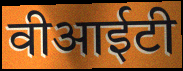
वीआईटी